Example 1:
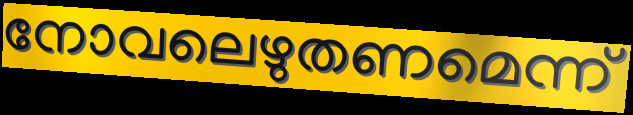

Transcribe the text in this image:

നോവലെഴുതണമെന്ന്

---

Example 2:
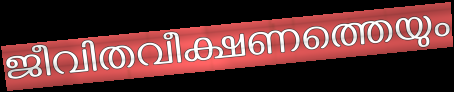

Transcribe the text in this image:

ജീവിതവീക്ഷണത്തെയും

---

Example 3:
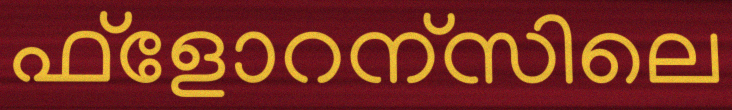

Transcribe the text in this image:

ഫ്ളോറന്സിലെ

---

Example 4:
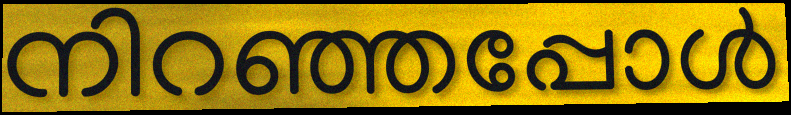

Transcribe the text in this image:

നിറഞ്ഞപ്പോൾ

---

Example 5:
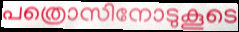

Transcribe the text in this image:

പത്രൊസിനോടുകൂടെ